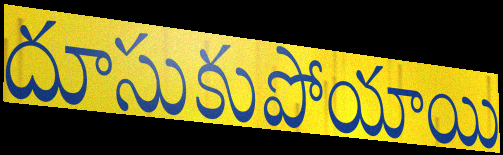
దూసుకుపోయాయి